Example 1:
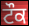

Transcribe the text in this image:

ਟੌਕ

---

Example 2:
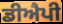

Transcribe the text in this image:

ਡੀਐਪੀ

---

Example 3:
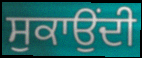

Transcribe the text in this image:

ਸੁਕਾਉਂਦੀ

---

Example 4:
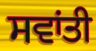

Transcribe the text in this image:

ਸਵਾਂਤੀ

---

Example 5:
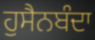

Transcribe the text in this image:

ਹੁਸੈਨਬੰਦਾ